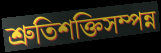
শ্রুতিশক্তিসম্পন্ন